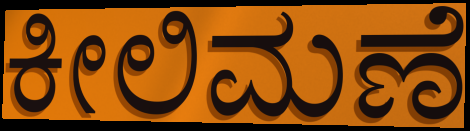
ಕೀಲಿಮಣೆ